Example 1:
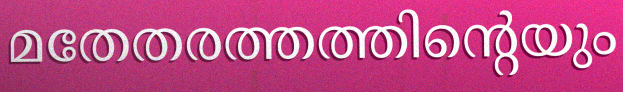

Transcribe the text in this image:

മതേതരത്തത്തിന്റെയും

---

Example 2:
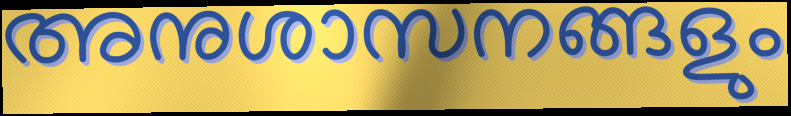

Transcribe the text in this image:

അനുശാസനങ്ങളും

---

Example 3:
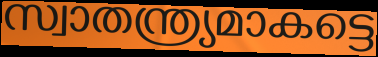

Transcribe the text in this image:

സ്വാതന്ത്ര്യമാകട്ടെ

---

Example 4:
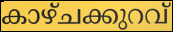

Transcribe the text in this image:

കാഴ്ചക്കുറവ്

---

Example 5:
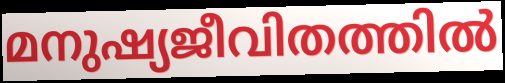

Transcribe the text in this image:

മനുഷ്യജീവിതത്തിൽ